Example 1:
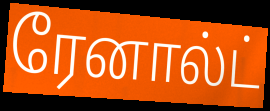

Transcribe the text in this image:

ரேனால்ட்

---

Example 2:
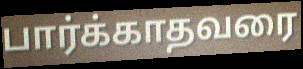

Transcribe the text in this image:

பார்க்காதவரை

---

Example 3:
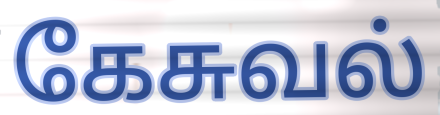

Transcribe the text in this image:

கேசுவல்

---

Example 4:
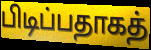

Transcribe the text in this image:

பிடிப்பதாகத்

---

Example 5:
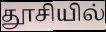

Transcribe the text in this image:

தூசியில்